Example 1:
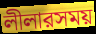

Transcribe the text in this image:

লীলারসময়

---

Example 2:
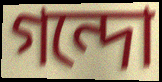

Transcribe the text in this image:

গন্দো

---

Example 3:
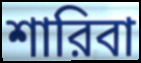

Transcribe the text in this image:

শারিবা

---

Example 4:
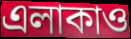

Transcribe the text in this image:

এলাকাও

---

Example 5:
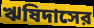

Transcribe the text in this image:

ঋষিদাসের